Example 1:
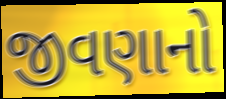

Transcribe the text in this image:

જીવણાનો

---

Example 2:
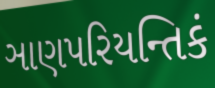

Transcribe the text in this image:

ઞાણપરિયન્તિકં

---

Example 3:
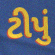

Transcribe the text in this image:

ટીપું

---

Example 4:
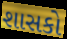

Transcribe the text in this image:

શાસકો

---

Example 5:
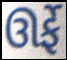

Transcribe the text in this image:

ઊર્ફે